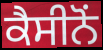
ਕੈਸੀਨੋਂ